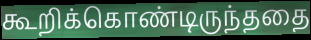
கூறிக்கொண்டிருந்ததை